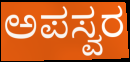
ಅಪಸ್ವರ